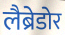
लैब्रेडोर